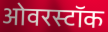
ओवरस्टॉक